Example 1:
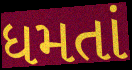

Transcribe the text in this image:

ધમતાં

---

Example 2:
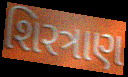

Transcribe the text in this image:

શિરત્રાણ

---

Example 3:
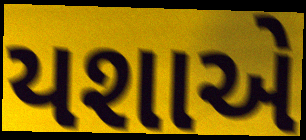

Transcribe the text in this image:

યશાએ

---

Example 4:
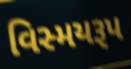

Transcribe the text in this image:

વિસ્મયરૂપ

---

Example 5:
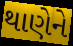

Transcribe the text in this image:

થાણેને